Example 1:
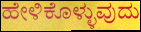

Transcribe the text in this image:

ಹೇಳಿಕೊಳ್ಳುವುದು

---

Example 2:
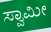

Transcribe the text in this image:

ಸ್ವಾಮೀ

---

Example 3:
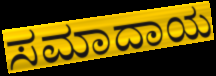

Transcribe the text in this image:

ಸಮಾದಾಯ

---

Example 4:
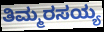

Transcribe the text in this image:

ತಿಮ್ಮರಸಯ್ಯ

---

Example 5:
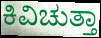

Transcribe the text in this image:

ಕಿವಿಚುತ್ತಾ